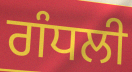
ਗੰਧਲੀ